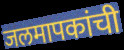
जलमापकांची